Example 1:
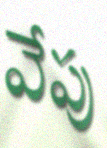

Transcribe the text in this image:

వేపు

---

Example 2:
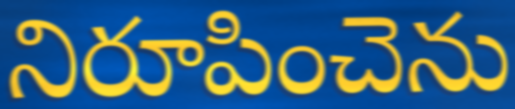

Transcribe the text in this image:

నిరూపించెను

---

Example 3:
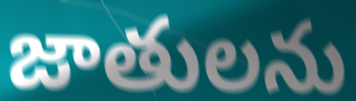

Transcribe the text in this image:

జాతులను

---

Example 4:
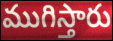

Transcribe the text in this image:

ముగిస్తారు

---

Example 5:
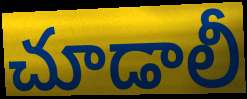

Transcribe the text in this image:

చూడాలీ